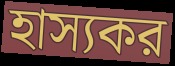
হাস্যকর